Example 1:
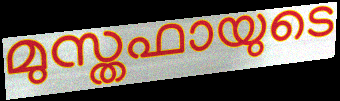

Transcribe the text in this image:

മുസ്തഫായുടെ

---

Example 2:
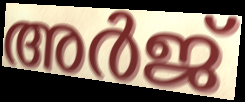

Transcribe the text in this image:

അർജ്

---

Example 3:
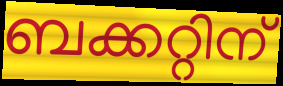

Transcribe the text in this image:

ബക്കറ്റിന്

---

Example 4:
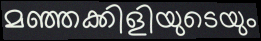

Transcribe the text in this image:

മഞ്ഞക്കിളിയുടെയും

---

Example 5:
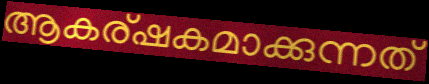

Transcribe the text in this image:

ആകര്ഷകമാക്കുന്നത്